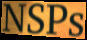
NSPs